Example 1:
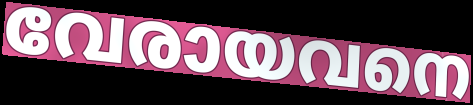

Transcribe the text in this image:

വേരായവനെ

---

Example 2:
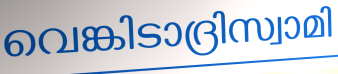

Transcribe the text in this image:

വെങ്കിടാദ്രിസ്വാമി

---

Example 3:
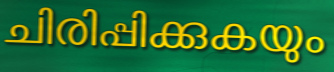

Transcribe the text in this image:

ചിരിപ്പിക്കുകയും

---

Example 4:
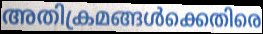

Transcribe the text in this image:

അതിക്രമങ്ങൾക്കെതിരെ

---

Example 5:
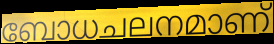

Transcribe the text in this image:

ബോധചലനമാണ്